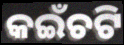
କଇଁଚଟି